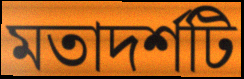
মতাদর্শটি